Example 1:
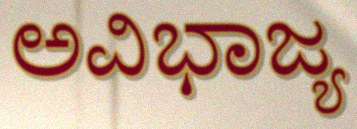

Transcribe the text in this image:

ಅವಿಭಾಜ್ಯ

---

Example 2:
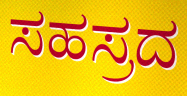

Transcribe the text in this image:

ಸಹಸ್ರದ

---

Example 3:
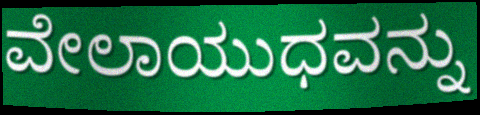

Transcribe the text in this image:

ವೇಲಾಯುಧವನ್ನು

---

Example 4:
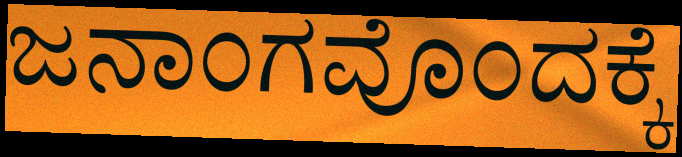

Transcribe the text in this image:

ಜನಾಂಗವೊಂದಕ್ಕೆ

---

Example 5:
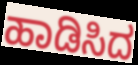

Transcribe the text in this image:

ಹಾಡಿಸಿದ